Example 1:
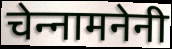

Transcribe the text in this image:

चेन्नामनेनी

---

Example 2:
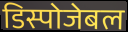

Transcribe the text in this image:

डिस्पोजेबल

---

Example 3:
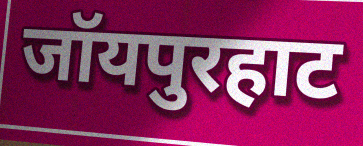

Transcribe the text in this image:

जॉयपुरहाट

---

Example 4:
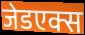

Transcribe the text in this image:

जेडएक्स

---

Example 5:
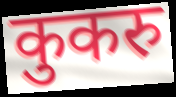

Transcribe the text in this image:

कुकरु